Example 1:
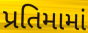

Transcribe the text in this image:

પ્રતિમામાં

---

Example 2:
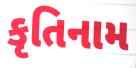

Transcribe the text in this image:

કૃતિનામ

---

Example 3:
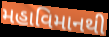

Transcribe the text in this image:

મહાવિમાનથી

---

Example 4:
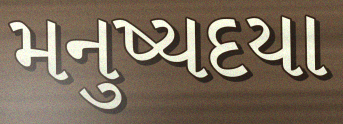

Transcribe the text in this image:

મનુષ્યદયા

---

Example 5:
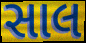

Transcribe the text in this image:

સાલ